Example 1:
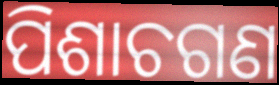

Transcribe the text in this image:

ପିଶାଚଗଣ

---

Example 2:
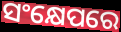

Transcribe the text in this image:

ସଂକ୍ଷେପରେ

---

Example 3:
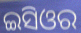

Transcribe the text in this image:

ଇସିଓର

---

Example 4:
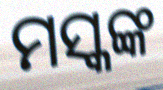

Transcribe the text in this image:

ମସ୍କଙ୍କ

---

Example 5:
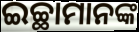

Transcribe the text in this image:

ଇଚ୍ଛାମାନଙ୍କ